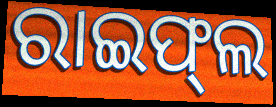
ରାଇଫ୍‌ଲ